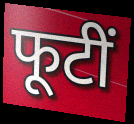
फूटीं